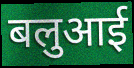
बलुआई